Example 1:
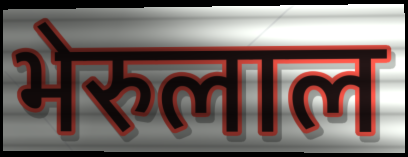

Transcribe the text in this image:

भेरुलाल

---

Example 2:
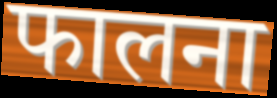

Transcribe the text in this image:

फालना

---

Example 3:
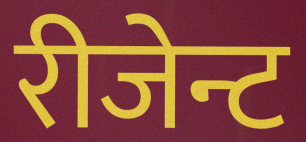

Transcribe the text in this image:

रीजेन्ट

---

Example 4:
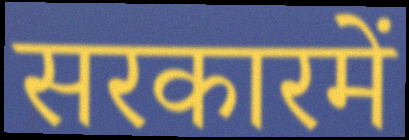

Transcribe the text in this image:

सरकारमें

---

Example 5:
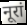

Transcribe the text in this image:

नूरां